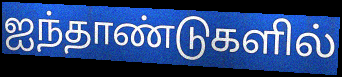
ஐந்தாண்டுகளில்